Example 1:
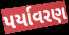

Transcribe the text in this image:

પર્યાવરણ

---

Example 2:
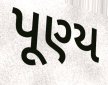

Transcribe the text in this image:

પૂણ્ય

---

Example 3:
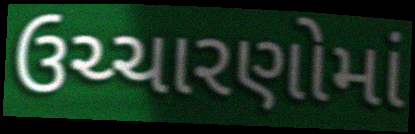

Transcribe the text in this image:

ઉચ્ચારણોમાં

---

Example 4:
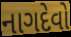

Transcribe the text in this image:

નાગદેવો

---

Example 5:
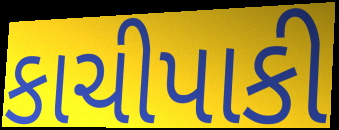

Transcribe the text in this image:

કાચીપાકી